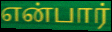
என்பார்